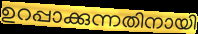
ഉറപ്പാക്കുന്നതിനായി